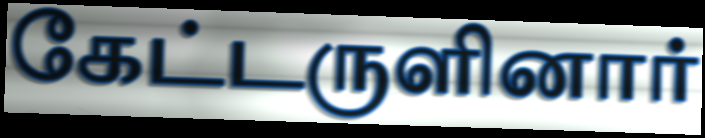
கேட்டருளினார்